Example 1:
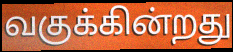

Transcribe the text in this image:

வகுக்கின்றது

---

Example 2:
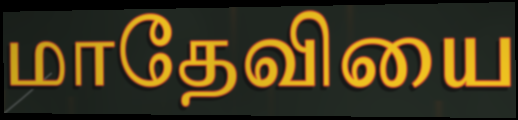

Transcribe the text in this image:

மாதேவியை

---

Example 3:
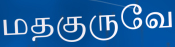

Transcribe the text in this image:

மதகுருவே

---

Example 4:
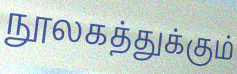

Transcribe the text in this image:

நூலகத்துக்கும்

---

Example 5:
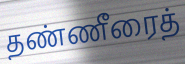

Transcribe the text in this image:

தண்ணீரைத்